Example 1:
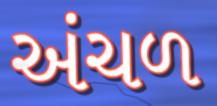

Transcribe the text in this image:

અંચળ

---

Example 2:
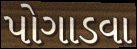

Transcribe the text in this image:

પોગાડવા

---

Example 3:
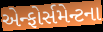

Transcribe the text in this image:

એન્ફોર્સમેન્ટના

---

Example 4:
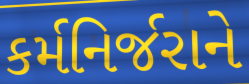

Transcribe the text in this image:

કર્મનિર્જરાને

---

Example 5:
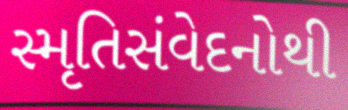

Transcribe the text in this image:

સ્મૃતિસંવેદનોથી